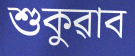
শুকুৱাব